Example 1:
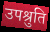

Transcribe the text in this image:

उपश्रुति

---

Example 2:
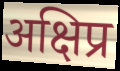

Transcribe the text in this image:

अक्षिप्र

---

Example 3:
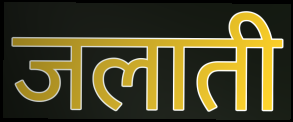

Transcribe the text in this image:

जलाती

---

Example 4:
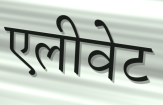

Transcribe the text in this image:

एलीवेट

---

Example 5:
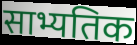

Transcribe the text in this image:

साभ्यतिक